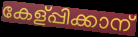
കേള്പ്പിക്കാന്